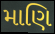
માણિ